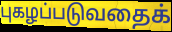
புகழப்படுவதைக்